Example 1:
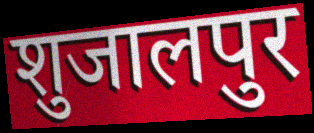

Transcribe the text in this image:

शुजालपुर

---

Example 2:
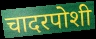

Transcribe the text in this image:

चादरपोशी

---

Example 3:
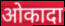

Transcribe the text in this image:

ओकादा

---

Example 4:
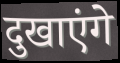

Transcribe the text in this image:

दुखाएंगे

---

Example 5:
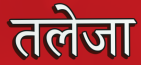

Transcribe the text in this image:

तलेजा